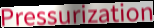
Pressurization